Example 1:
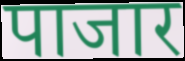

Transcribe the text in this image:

पाजार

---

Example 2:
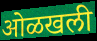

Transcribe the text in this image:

ओळखली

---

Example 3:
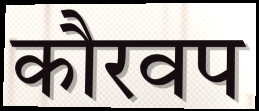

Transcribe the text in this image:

कौरवप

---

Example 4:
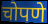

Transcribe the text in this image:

चोपणे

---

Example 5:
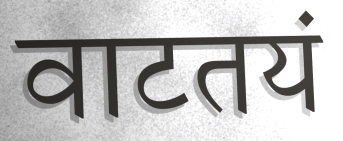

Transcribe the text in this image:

वाटतयं